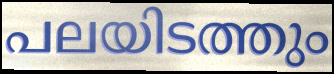
പലയിടത്തും